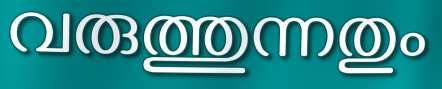
വരുത്തുന്നതും